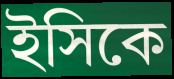
ইসিকে